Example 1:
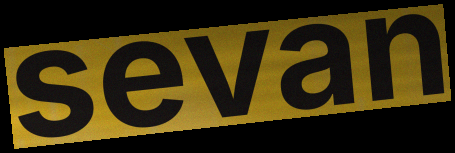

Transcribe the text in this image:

sevan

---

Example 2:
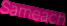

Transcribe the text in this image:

Sameach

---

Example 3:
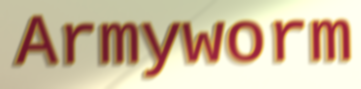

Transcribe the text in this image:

Armyworm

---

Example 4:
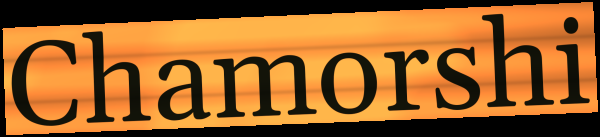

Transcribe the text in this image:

Chamorshi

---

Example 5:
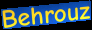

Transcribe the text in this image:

Behrouz